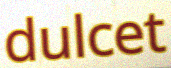
dulcet